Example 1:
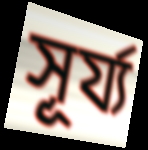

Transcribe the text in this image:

সূৰ্য্য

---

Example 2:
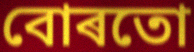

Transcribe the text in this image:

বোৰতো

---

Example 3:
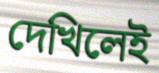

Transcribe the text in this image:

দেখিলেই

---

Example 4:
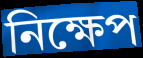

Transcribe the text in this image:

নিক্ষেপ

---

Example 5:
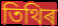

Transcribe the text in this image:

তিথিৰ